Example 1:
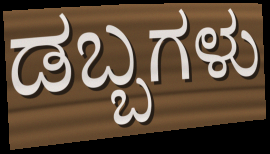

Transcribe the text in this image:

ಡಬ್ಬಗಳು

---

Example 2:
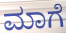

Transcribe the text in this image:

ಮಾಗೆ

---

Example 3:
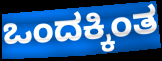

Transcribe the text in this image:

ಒಂದಕ್ಕಿಂತ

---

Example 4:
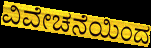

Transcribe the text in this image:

ವಿವೇಚನೆಯಿಂದ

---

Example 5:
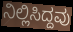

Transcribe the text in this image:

ನಿಲ್ಲಿಸಿದ್ದವು